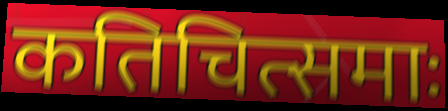
कतिचित्समाः